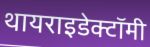
थायराइडेक्टॉमी